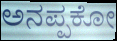
ಅನಪ್ಪಕೋ